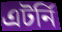
এটর্নি